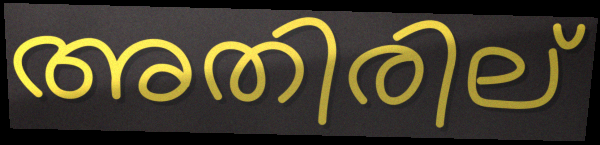
അതിരില്